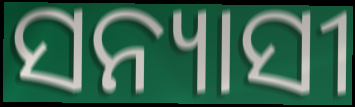
ସନ୍ୟାସୀ